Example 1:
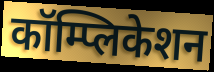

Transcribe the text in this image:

कॉम्प्लिकेशन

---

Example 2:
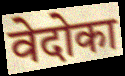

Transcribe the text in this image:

वेदोका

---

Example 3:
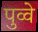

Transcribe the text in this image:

पुव्वे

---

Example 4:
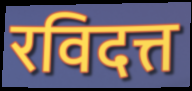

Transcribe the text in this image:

रविदत्त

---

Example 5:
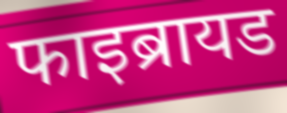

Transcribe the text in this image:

फाइब्रायड